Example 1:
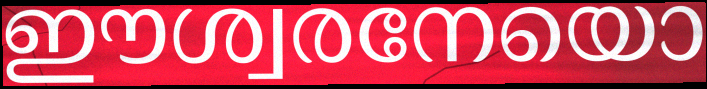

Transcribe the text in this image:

ഈശ്വരനേയൊ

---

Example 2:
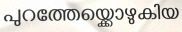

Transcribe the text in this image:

പുറത്തേയ്ക്കൊഴുകിയ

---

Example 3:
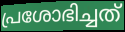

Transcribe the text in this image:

പ്രശോഭിച്ചത്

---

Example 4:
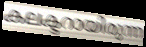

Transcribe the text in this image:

കലക്ടറായിരുന്ന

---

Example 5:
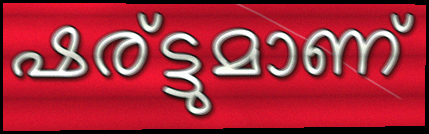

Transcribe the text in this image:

ഷര്ട്ടുമാണ്